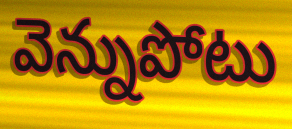
వెన్నుపోటు